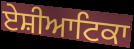
ਏਸ਼ੀਆਟਿਕਾ